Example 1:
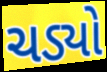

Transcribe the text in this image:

ચડ્યો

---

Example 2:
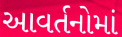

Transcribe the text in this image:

આવર્તનોમાં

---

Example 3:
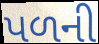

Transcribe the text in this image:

પળની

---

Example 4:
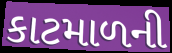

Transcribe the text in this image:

કાટમાળની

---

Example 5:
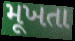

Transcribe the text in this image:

મૂખતા